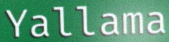
Yallama